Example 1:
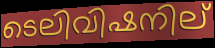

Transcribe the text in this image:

ടെലിവിഷനില്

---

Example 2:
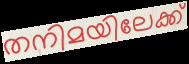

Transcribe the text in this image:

തനിമയിലേക്ക്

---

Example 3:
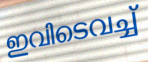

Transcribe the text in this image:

ഇവിടെവച്ച്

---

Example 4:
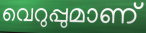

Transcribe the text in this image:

വെറുപ്പുമാണ്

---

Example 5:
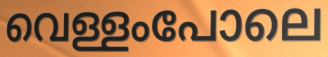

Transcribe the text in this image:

വെള്ളംപോലെ